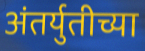
अंतर्युतीच्या